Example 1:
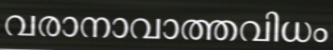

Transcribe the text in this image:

വരാനാവാത്തവിധം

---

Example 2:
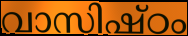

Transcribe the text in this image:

വാസിഷ്ഠം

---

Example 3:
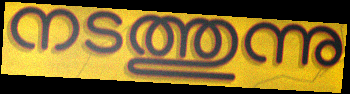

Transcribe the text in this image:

നടത്തുന്നു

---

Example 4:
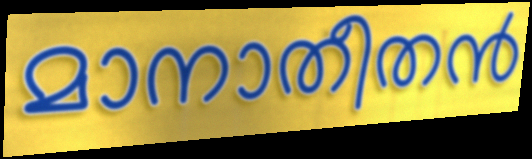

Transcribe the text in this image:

മാനാതീതൻ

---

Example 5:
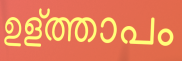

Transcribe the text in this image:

ഉള്ത്താപം